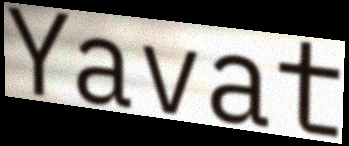
Yavat